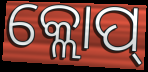
କ୍ଲୋପ୍